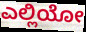
ಎಲ್ಲಿಯೋ